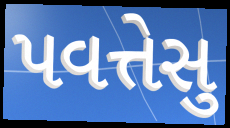
પવત્તેસુ